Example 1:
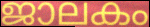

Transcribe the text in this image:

ജാലകം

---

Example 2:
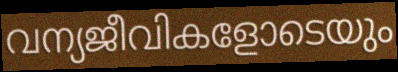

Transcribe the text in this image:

വന്യജീവികളോടെയും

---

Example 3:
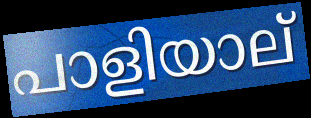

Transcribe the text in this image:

പാളിയാല്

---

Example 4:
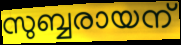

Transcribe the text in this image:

സുബ്ബരായന്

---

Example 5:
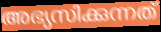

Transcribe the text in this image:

അഭ്യസിക്കുന്നത്